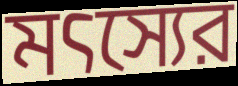
মৎস্যের